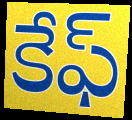
కేఫ్